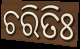
ଚରିତିଃ